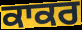
ਕਾਕਰ